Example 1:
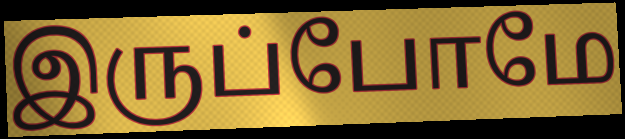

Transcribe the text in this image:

இருப்போமே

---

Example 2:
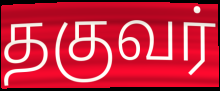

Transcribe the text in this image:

தகுவர்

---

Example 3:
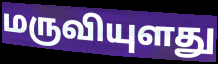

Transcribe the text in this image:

மருவியுளது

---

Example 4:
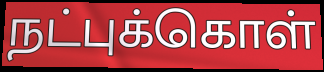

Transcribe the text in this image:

நட்புக்கொள்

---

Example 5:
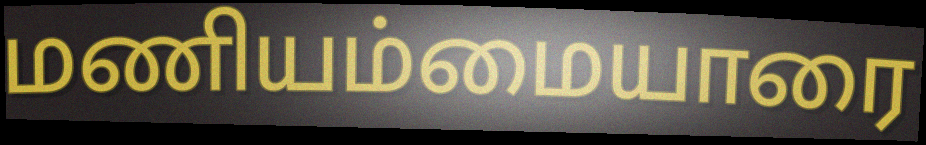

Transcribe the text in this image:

மணியம்மையாரை